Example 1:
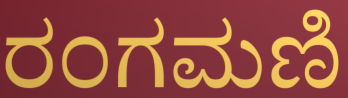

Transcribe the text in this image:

ರಂಗಮಣಿ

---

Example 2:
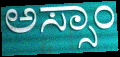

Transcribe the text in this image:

ಅಸ್ಸಾಂ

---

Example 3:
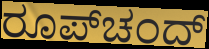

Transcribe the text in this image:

ರೂಪ್‌ಚಂದ್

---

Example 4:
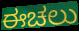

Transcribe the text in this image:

ಈಚಲು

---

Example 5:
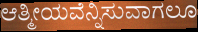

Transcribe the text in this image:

ಆತ್ಮೀಯವೆನ್ನಿಸುವಾಗಲೂ